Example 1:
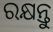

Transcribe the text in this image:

ରକ୍ଷନ୍ତୁ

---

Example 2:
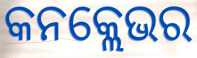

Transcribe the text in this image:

କନକ୍ଲେଭର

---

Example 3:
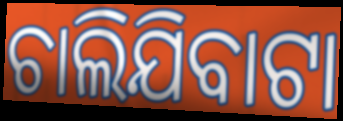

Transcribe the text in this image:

ଚାଲିଯିବାଟା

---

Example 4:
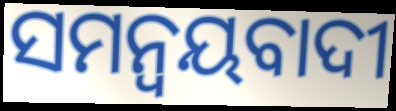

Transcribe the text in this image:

ସମନ୍ୱୟବାଦୀ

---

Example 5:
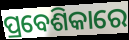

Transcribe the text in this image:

ପ୍ରବେଶିକାରେ